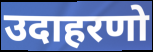
उदाहरणो